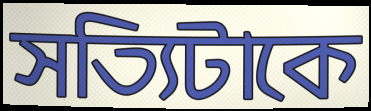
সত্যিটাকে